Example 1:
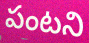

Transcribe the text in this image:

పంటని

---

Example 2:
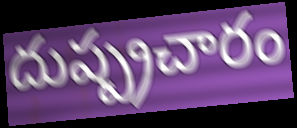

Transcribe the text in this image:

దుష్ప్రచారం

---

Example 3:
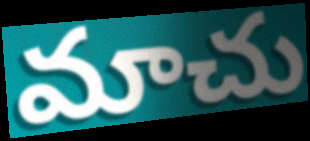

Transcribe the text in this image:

మాచు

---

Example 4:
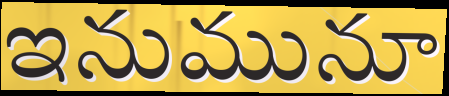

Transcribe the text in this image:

ఇనుమునూ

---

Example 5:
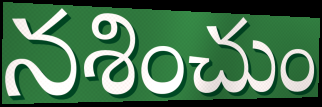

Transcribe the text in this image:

నశించుం